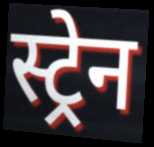
स्ट्रेन